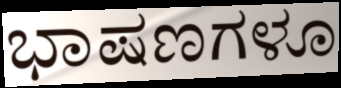
ಭಾಷಣಗಳೂ